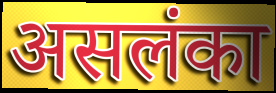
असलंका